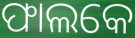
ଫାଲକେ